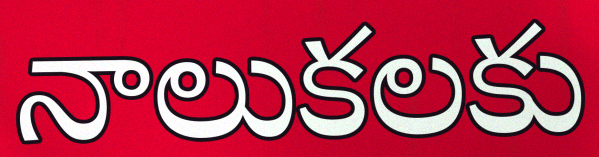
నాలుకలకు